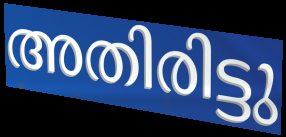
അതിരിട്ടു